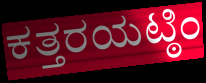
ಕತ್ತರಯಟ್ಠಿಂ